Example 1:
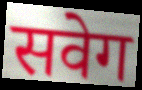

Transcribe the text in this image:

सवेग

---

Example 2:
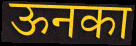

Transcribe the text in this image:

ऊनका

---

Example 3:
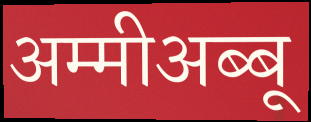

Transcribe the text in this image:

अम्मीअब्बू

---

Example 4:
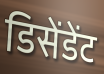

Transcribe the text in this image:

डिसेंडेंट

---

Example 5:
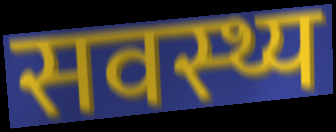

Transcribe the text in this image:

सवस्थ्य